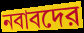
নবাবদের